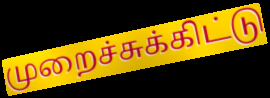
முறைச்சுக்கிட்டு